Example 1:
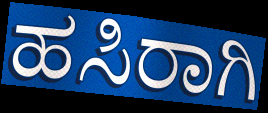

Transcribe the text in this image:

ಹಸಿರಾಗಿ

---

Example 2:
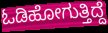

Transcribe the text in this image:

ಓಡಿಹೋಗುತ್ತಿದ್ದೆ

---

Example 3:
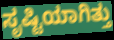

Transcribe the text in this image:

ಸೃಷ್ಟಿಯಾಗಿತ್ತು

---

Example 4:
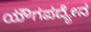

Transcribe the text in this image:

ಯೌಗಪದ್ಯೇನ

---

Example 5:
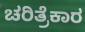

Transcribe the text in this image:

ಚರಿತ್ರೆಕಾರ